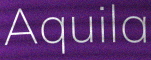
Aquila